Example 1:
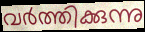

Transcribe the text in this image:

വർത്തിക്കുന്നു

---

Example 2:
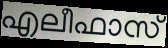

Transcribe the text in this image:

എലീഫാസ്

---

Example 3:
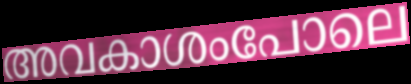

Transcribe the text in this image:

അവകാശംപോലെ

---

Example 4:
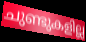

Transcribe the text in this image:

ചുണ്ടുകളില്ല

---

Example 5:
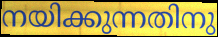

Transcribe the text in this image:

നയിക്കുന്നതിനു